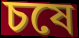
চষে